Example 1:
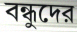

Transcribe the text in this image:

বন্ধুদের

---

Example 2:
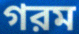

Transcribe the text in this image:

গরম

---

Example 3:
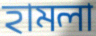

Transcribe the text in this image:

হামলা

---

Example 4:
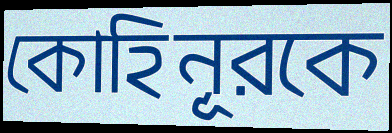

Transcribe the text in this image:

কোহিনূরকে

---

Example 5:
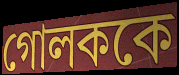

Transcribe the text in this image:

গোলককে